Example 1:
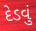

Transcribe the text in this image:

દેડવું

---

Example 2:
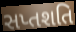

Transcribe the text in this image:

સપ્તશતિ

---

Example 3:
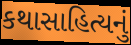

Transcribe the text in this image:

કથાસાહિત્યનું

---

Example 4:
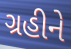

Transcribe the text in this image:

ગ્રહીને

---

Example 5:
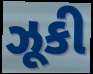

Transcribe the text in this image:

ઝૂકી